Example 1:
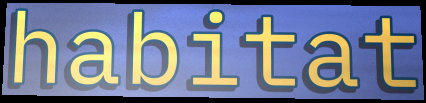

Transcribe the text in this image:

habitat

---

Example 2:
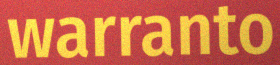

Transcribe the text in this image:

warranto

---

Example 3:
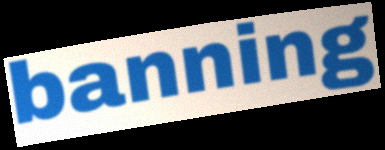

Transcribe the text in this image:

banning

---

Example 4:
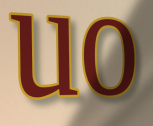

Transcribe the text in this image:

uo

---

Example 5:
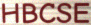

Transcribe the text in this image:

HBCSE